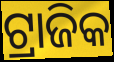
ଟ୍ରାଜିକ